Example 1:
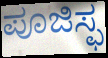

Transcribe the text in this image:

ಪೂಜಿಸ್ಫ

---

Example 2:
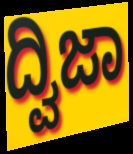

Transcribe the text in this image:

ದ್ವಿಜಾ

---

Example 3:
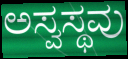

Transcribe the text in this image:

ಅಸ್ವಸ್ಥವು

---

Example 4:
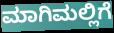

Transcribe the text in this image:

ಮಾಗಿಮಲ್ಲಿಗೆ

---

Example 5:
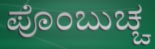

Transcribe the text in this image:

ಪೊಂಬುಚ್ಚ